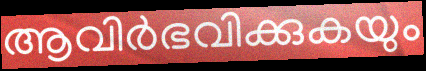
ആവിർഭവിക്കുകയും